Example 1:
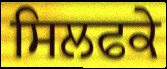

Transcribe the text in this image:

ਸਿਲਫਕੇ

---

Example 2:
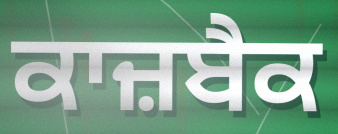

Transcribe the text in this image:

ਕਾਜ਼ਬੈਕ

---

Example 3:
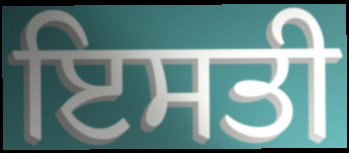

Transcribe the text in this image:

ਇਸਤੀ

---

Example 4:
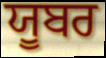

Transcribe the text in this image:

ਯੂਬਰ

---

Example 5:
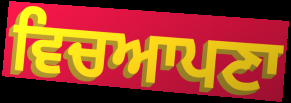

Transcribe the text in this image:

ਵਿਚਆਪਣਾ